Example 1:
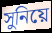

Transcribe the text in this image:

সুনিয়ে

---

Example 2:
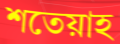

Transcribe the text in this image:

শতেয়াহ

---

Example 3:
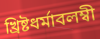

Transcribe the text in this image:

খ্রিষ্টধর্মাবলম্বী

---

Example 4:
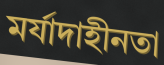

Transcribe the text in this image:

মর্যাদাহীনতা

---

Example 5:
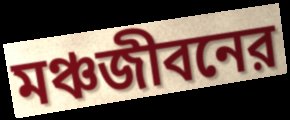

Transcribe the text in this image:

মঞ্চজীবনের